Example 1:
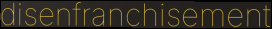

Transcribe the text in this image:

disenfranchisement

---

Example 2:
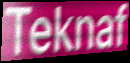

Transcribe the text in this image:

Teknaf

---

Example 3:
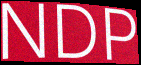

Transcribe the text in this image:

NDP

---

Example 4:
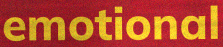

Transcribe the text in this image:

emotional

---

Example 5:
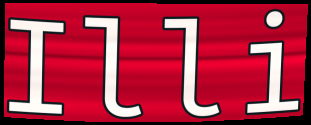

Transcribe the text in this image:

Illi